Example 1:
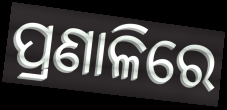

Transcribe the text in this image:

ପ୍ରଣାଳିରେ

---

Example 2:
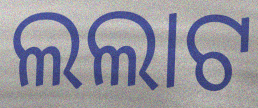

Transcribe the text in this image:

ଲଲାଟ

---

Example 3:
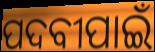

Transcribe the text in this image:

ପଦବୀପାଇଁ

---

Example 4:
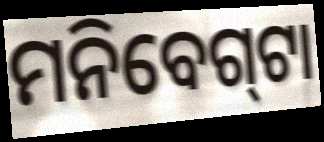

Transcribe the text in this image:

ମନିବେଗ୍‍ଟା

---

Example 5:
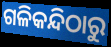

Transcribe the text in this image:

ଗଳିକନ୍ଦିଠାରୁ